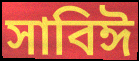
সাবিঈ